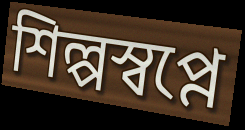
শিল্পস্বপ্নে